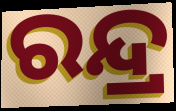
ରନ୍ଦ୍ର